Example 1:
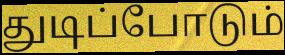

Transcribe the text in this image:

துடிப்போடும்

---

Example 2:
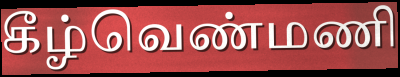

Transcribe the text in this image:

கீழ்வெண்மணி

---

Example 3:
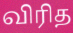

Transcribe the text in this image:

விரித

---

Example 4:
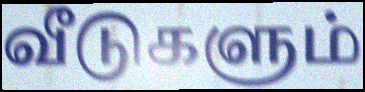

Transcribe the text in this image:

வீடுகளும்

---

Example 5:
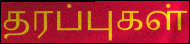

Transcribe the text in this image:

தரப்புகள்